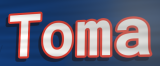
Toma